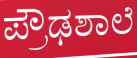
ಪ್ರೌಢಶಾಲೆ